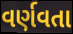
વર્ણવતા